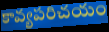
కావ్యపరిచయం